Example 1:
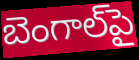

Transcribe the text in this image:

బెంగాల్‌పై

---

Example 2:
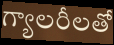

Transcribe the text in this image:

గ్యాలరీలతో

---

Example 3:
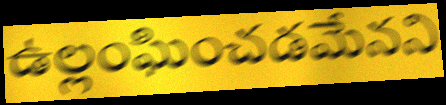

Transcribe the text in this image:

ఉల్లంఘించడమేనని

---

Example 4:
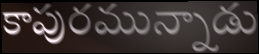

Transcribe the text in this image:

కాపురమున్నాడు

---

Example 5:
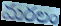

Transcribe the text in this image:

మరలం